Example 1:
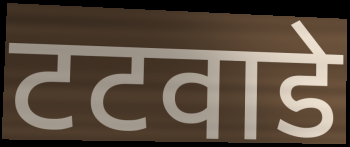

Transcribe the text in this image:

टटवाडे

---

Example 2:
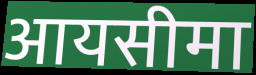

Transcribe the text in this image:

आयसीमा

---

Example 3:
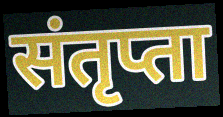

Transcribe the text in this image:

संतृप्ता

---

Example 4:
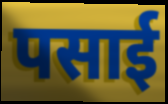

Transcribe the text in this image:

पसाई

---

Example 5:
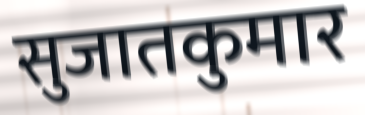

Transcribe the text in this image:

सुजातकुमार